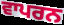
ਵਾਪਰਨ